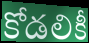
కోడలికీ